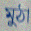
মুঠা